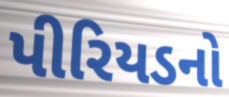
પીરિયડનો